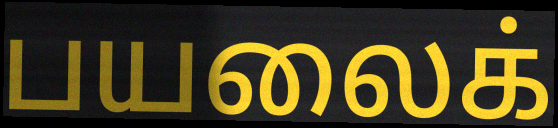
பயலைக்